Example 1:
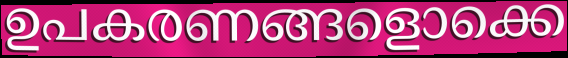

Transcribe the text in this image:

ഉപകരണങ്ങളൊക്കെ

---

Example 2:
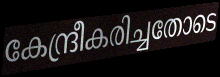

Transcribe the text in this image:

കേന്ദ്രീകരിച്ചതോടെ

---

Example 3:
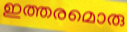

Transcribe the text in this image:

ഇത്തരമൊരു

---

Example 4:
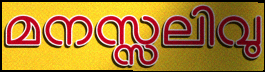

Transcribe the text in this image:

മനസ്സലിവു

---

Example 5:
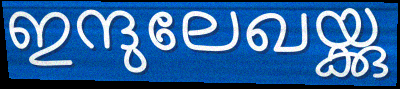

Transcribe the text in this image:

ഇന്ദുലേഖയ്ക്കു